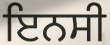
ਇਨਸੀ